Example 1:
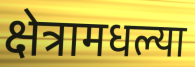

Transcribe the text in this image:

क्षेत्रामधल्या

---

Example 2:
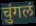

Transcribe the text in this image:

चुंगलं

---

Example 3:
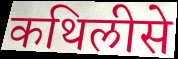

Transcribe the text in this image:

कथिलीसे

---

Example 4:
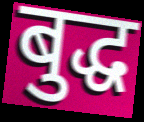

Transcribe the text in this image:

बुद्ध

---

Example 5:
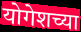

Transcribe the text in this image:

योगेशच्या